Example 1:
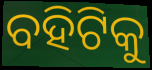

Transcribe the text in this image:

ବହିଟିକୁ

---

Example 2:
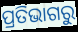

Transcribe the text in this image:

ପ୍ରତିଭାଗରୁ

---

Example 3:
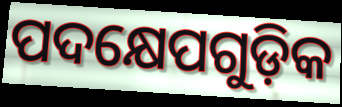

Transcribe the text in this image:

ପଦକ୍ଷେପଗୁଡ଼ିକ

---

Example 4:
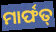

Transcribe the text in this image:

ମାର୍ଫତ୍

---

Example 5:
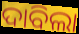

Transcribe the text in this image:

ଦାବିଲା